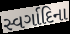
સ્વર્ગાદિના